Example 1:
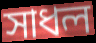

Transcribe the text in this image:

সাধল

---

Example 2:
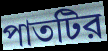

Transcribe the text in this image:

পাতটির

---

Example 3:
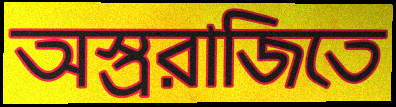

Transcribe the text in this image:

অস্ত্ররাজিতে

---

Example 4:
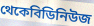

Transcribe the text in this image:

থেকেবিডিনিউজ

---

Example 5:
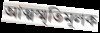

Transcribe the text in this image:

আত্মস্মৃতিমূলক